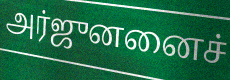
அர்ஜுனனைச்